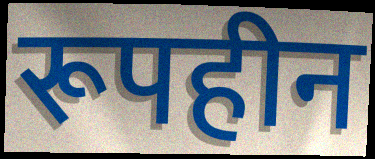
रूपहीन